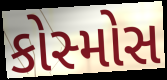
કોસ્મોસ